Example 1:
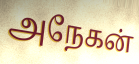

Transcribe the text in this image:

அநேகன்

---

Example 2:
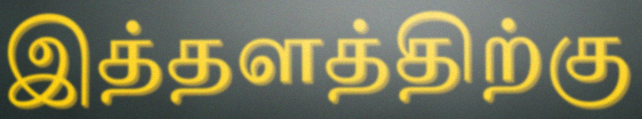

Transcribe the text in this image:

இத்தளத்திற்கு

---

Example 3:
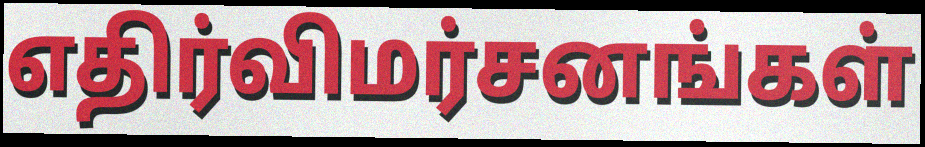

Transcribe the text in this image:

எதிர்விமர்சனங்கள்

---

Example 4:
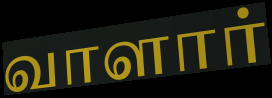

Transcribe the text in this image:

வாளார்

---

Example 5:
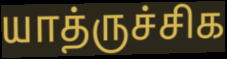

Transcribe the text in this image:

யாத்ருச்சிக